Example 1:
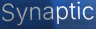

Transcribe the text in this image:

Synaptic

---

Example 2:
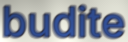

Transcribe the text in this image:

budite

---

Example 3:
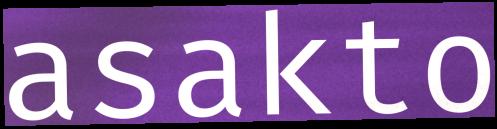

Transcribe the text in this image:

asakto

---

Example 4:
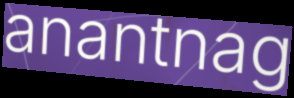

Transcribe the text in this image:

anantnag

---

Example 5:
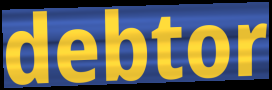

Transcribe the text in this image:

debtor